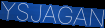
YSJAGAN